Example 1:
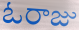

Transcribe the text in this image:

ఓరాజు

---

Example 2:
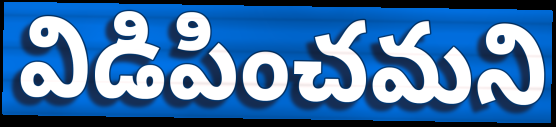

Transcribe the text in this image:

విడిపించమని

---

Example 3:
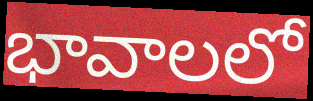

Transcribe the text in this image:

భావాలలో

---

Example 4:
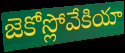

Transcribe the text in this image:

జెకోస్లోవేకియా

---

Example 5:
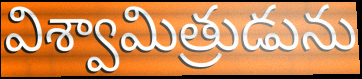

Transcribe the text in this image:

విశ్వామిత్రుడును